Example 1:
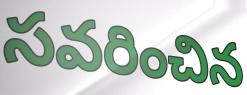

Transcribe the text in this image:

సవరించిన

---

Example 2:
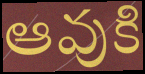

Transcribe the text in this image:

ఆవుకి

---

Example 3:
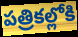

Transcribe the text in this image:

పత్రికల్లోకి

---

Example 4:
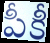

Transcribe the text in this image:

పీకీ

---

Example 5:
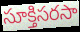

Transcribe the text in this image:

సూక్తిసరసా